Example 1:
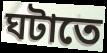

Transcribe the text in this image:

ঘটাতে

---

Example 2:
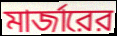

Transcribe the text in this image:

মার্জারের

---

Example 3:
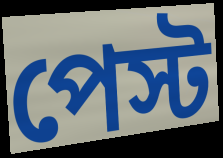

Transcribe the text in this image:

পেস্ট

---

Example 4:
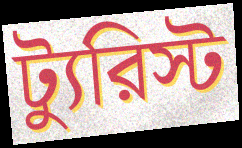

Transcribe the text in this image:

ট্যুরিস্ট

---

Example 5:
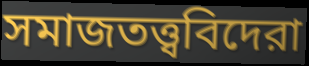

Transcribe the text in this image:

সমাজতত্ত্ববিদেরা